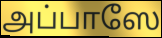
அப்பாஸே